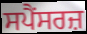
ਸਪੈਂਸਰਜ਼